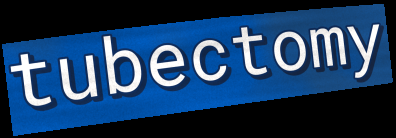
tubectomy